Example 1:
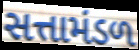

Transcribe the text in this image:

સત્તામંડળ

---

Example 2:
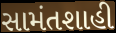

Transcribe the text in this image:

સામંતશાહી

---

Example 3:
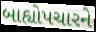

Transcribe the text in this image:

બાહ્યોપચારને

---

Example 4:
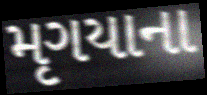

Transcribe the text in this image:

મૃગયાના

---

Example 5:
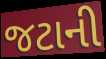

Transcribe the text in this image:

જટાની